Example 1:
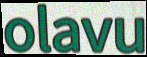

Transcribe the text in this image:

olavu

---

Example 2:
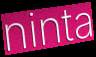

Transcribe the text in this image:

ninta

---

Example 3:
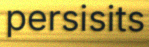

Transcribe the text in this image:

persisits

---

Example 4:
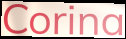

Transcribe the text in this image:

Corina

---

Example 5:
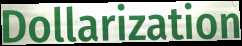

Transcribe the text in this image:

Dollarization